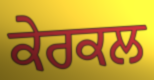
ਕੇਰਕਲ